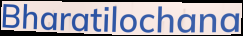
Bharatilochana